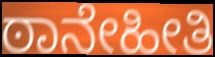
ಠಾನೇಹೀತಿ